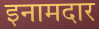
इनामदार